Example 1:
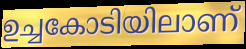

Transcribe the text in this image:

ഉച്ചകോടിയിലാണ്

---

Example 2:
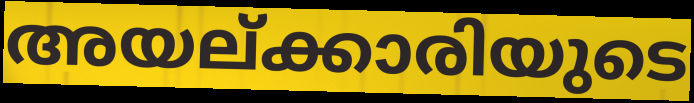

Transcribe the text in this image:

അയല്ക്കാരിയുടെ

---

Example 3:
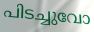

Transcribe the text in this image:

പിടച്ചുവോ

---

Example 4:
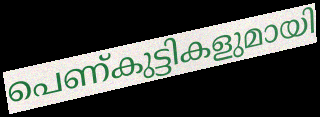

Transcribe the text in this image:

പെണ്കുട്ടികളുമായി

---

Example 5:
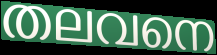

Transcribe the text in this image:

തലവനെ